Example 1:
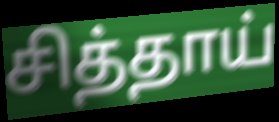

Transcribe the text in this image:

சித்தாய்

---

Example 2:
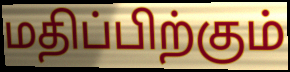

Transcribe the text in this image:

மதிப்பிற்கும்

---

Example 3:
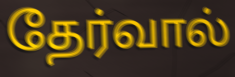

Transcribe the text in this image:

தேர்வால்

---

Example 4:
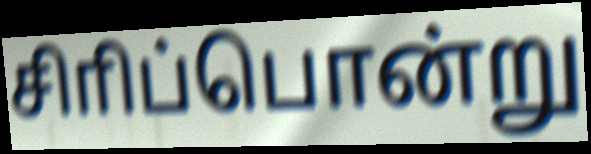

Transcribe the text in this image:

சிரிப்பொன்று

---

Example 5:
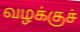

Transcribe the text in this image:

வழக்குச்